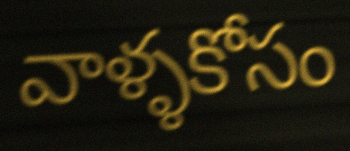
వాళ్ళకోసం